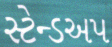
સ્ટેન્ડઅપ